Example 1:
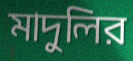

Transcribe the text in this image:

মাদুলির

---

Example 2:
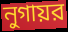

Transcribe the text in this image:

নুগায়র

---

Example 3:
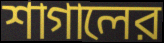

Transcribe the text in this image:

শাগালের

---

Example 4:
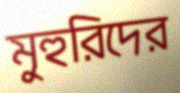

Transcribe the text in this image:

মুহুরিদের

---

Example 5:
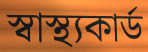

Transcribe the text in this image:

স্বাস্থ্যকার্ড